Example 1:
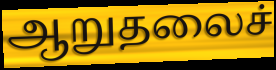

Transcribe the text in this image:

ஆறுதலைச்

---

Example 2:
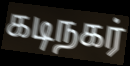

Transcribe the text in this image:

கடிநகர்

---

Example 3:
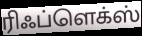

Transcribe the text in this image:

ரிஃப்ளெக்ஸ்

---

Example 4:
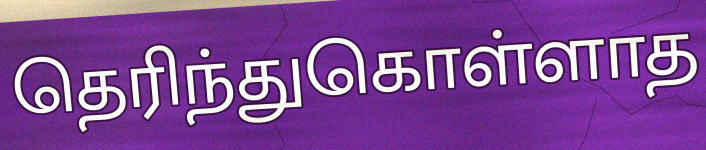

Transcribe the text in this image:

தெரிந்துகொள்ளாத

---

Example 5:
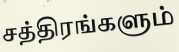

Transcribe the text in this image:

சத்திரங்களும்